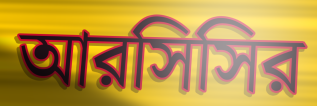
আরসিসির